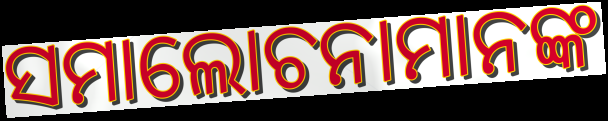
ସମାଲୋଚନାମାନଙ୍କ